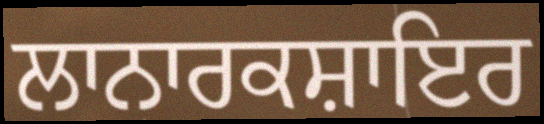
ਲਾਨਾਰਕਸ਼ਾਇਰ